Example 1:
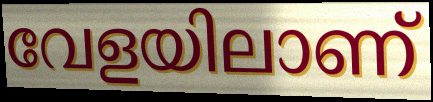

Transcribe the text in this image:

വേളയിലാണ്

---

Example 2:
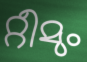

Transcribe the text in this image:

റ്റീമും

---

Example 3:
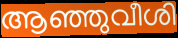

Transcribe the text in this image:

ആഞ്ഞുവീശി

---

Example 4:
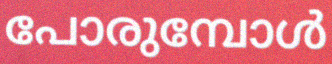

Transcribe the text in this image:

പോരുമ്പോൾ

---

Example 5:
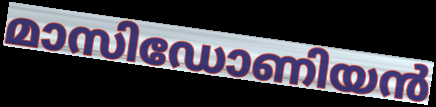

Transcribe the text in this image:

മാസിഡോണിയൻ